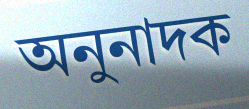
অনুনাদক